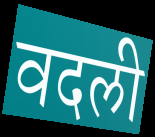
वदली